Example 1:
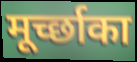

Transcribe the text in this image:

मूर्च्छाका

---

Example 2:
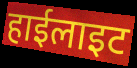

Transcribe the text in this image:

हाईलाइट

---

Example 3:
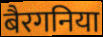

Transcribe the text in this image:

बैरगनिया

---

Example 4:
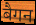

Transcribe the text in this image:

बैगन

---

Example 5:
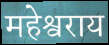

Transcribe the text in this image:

महेश्वराय